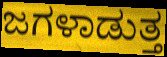
ಜಗಳಾಡುತ್ತ